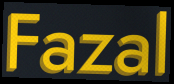
Fazal